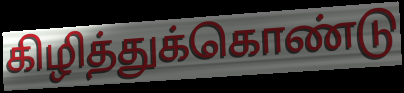
கிழித்துக்கொண்டு